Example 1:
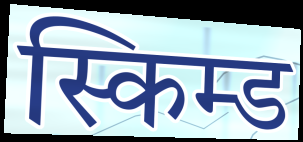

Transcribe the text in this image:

स्किम्ड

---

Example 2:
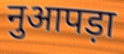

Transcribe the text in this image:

नुआपड़ा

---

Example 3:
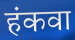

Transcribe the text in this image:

हंकवा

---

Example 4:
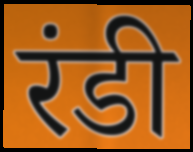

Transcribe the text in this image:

रंडी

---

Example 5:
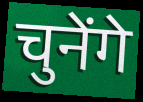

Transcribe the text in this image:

चुनेंगे